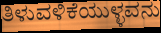
ತಿಳುವಳಿಕೆಯುಳ್ಳವನು